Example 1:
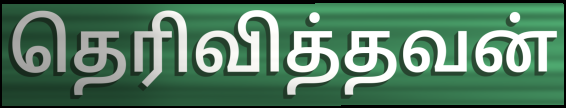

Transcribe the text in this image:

தெரிவித்தவன்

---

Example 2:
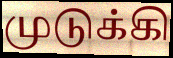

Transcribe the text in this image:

முடுக்கி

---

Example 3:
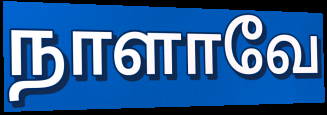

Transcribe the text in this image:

நாளாவே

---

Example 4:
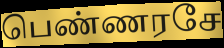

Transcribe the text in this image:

பெண்ணரசே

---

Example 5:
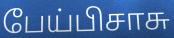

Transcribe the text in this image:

பேய்பிசாசு